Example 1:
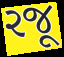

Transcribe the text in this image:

રજૂ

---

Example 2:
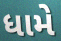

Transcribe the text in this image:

ધામે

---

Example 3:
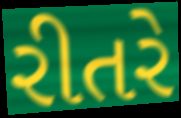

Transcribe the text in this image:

રીતરે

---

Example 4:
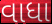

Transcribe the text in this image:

વાધા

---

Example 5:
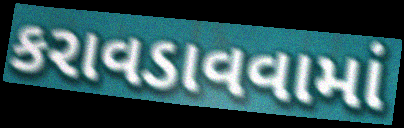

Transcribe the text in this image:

કરાવડાવવામાં